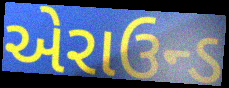
એરાઉન્ડ